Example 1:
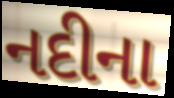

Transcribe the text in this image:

નદીના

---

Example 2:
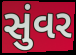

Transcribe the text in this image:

સુંવર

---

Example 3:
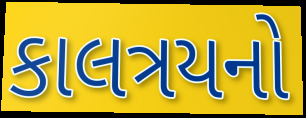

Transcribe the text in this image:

કાલત્રયનો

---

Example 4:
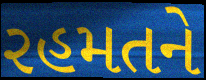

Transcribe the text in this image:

રહમતને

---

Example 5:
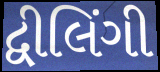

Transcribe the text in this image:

દ્વીલિંગી